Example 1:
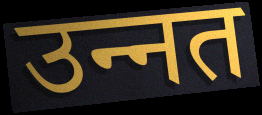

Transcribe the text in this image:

उन्‍नत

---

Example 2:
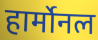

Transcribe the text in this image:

हार्मोनल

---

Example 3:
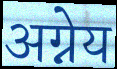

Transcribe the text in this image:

अग्नेय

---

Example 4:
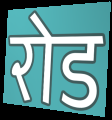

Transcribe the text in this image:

रोड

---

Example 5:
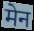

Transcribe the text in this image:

मेन